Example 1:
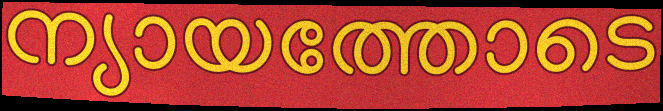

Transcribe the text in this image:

ന്യായത്തോടെ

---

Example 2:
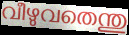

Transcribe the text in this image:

വീഴുവതെന്തു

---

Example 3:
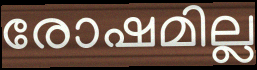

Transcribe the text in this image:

രോഷമില്ല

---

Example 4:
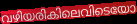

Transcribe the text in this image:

വഴിയരികിലെവിടെയോ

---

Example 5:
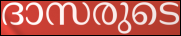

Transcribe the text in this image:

ദാസരുടെ